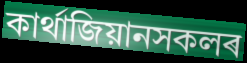
কাৰ্থাজিয়ানসকলৰ